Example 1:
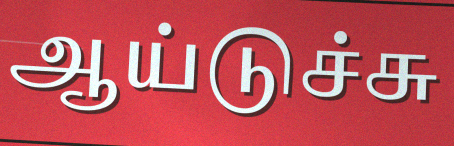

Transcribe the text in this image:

ஆய்டுச்சு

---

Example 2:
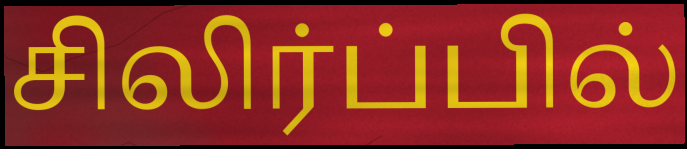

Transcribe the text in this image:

சிலிர்ப்பில்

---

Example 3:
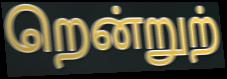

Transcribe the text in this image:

றென்றுற்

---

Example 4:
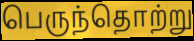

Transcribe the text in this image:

பெருந்தொற்று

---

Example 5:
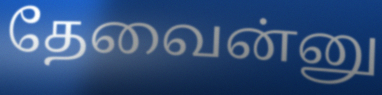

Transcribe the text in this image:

தேவைன்னு